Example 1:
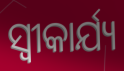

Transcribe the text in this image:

ସ୍ଵୀକାର୍ଯ୍ୟ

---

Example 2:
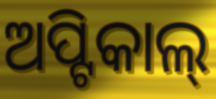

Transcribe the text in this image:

ଅପ୍ଟିକାଲ୍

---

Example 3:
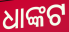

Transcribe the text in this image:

ଧାଙ୍କଟ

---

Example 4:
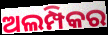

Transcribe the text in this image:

ଅଲମ୍ପିକର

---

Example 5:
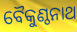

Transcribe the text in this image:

ବୈକୁଣ୍ଠନାଥ